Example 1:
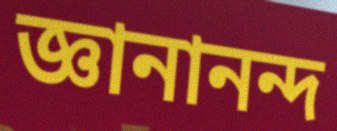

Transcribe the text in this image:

জ্ঞানানন্দ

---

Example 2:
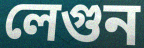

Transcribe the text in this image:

লেগুন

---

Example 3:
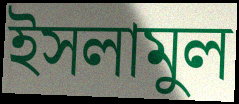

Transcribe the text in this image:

ইসলামুল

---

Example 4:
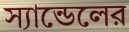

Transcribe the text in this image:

স্যান্ডেলের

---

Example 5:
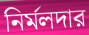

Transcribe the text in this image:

নির্মলদার